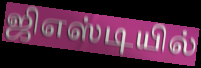
ஜிஎஸ்டியில்